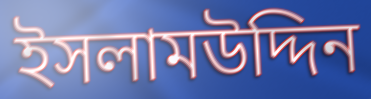
ইসলামউদ্দিন